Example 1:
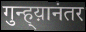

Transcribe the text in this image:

गुन्ह्य़ानंतर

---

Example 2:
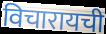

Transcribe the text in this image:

विचारायची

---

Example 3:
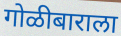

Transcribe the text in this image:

गोळीबाराला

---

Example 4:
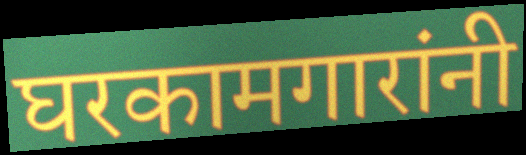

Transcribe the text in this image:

घरकामगारांनी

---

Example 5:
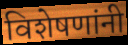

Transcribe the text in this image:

विशेषणांनी